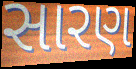
સારણ